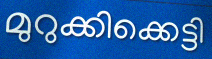
മുറുക്കിക്കെട്ടി